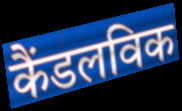
कैंडलविक